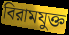
বিরামযুক্ত